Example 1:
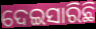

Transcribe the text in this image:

ଦେଇସାରିଛି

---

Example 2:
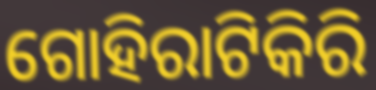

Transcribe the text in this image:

ଗୋହିରାଟିକିରି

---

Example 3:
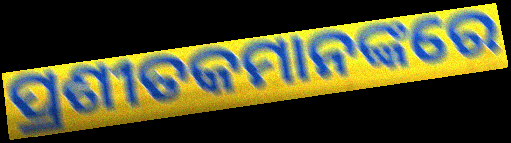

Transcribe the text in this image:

ପ୍ରଶୀତକମାନଙ୍କରେ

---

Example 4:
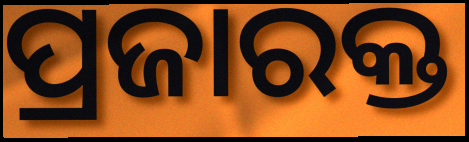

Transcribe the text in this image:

ପ୍ରଜାରକ୍ତ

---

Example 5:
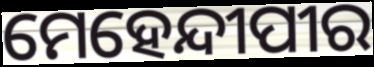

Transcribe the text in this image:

ମେହେନ୍ଦୀପୀର